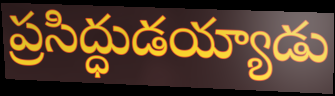
ప్రసిద్ధుడయ్యాడు